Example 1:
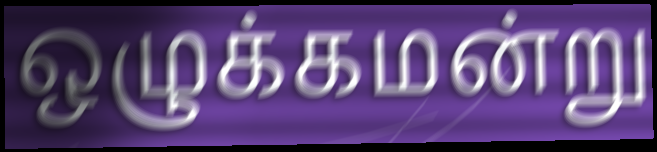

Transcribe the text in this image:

ஒழுக்கமன்று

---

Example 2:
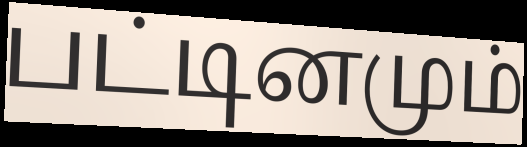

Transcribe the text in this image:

பட்டினமும்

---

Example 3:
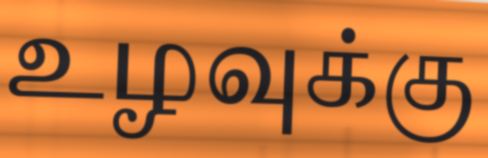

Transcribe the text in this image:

உழவுக்கு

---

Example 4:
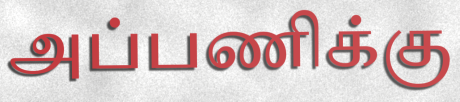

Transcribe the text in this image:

அப்பணிக்கு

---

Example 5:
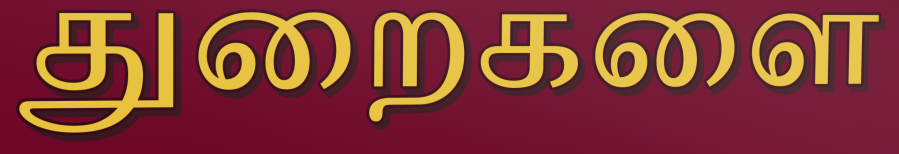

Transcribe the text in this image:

துறைகளை